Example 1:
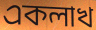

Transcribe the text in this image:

একলাখ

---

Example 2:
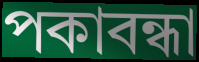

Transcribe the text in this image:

পকাবন্ধা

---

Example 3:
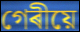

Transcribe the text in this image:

গেৰীয়ে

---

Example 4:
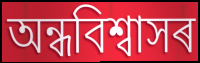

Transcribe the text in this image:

অন্ধবিশ্বাসৰ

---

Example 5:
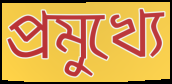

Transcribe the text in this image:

প্ৰমুখ্যে